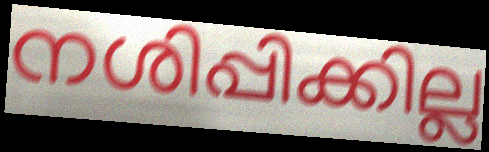
നശിപ്പിക്കില്ല